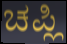
ಚಪ್ಲಿ